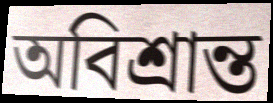
অবিশ্ৰান্ত